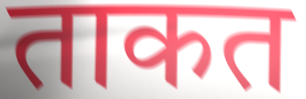
ताकत